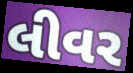
લીવર